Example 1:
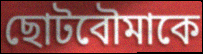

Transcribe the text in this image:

ছোটবৌমাকে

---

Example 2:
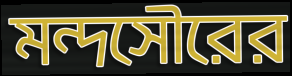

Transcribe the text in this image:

মন্দসৌরের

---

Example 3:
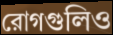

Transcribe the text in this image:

রোগগুলিও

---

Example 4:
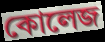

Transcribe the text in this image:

কোলেজ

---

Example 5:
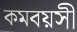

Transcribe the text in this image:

কমবয়সী